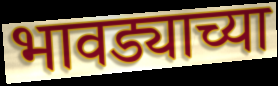
भावड्याच्या